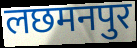
लछमनपुर